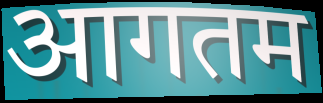
आगतम